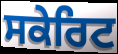
ਸਕੇਰਿਟ